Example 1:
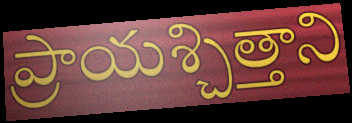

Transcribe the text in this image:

ప్రాయశ్చిత్తాని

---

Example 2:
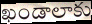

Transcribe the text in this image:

ఖండాలాకు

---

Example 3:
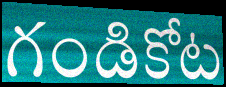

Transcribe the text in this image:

గండికోట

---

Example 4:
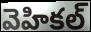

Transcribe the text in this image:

వెహికల్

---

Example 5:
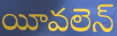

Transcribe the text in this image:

యీవలెన్